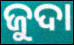
ଜୁଦା